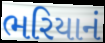
ભરિયાનં